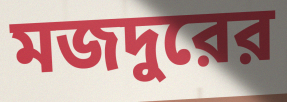
মজদুরের